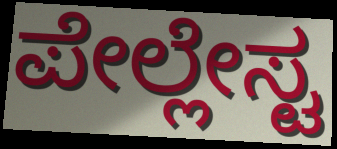
ಪೇಲ್ಲೇಸ್ಟ